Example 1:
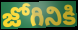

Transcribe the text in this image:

జోగినికి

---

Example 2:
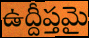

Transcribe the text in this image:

ఉద్దీప్తమై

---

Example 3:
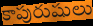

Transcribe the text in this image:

కాపురుషులు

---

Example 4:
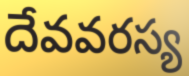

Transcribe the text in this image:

దేవవరస్య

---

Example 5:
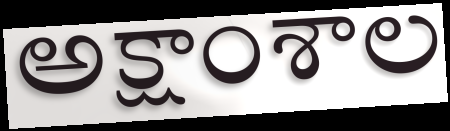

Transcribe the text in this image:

అక్షాంశాల